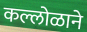
कल्लोळाने